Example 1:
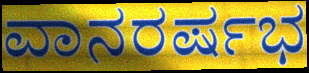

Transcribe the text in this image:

ವಾನರರ್ಷಭ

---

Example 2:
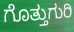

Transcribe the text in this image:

ಗೊತ್ತುಗುರಿ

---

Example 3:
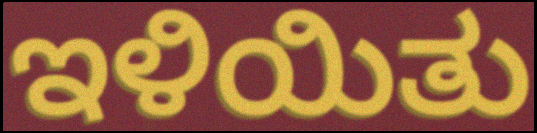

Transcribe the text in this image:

ಇಳಿಯಿತು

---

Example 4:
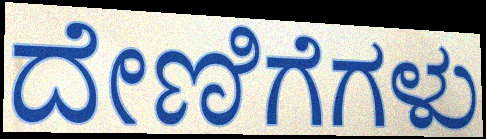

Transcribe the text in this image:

ದೇಣಿಗೆಗಳು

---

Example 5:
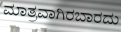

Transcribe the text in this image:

ಮಾತ್ರವಾಗಿರಬಾರದು